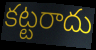
కట్టరాదు